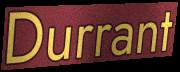
Durrant